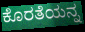
ಕೊರತೆಯನ್ನ